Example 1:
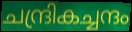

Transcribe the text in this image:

ചന്ദ്രികച്ചന്ദം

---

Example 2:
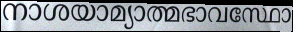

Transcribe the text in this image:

നാശയാമ്യാത്മഭാവസ്ഥോ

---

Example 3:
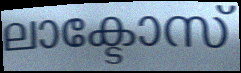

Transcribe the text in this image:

ലാക്ടോസ്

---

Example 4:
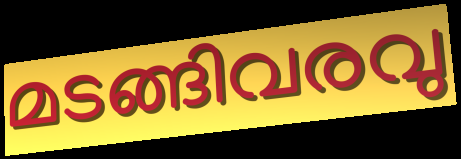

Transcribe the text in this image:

മടങ്ങിവരവു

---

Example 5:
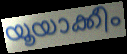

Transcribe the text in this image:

യൂയാക്കീം